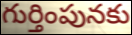
గుర్తింపునకు